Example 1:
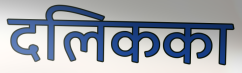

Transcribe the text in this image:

दलिकका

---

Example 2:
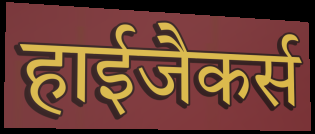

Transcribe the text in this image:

हाईजैकर्स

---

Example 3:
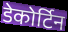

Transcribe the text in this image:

डेकोर्टिन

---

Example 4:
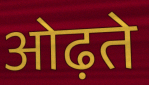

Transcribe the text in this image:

ओढ़ते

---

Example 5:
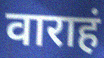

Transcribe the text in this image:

वाराहं